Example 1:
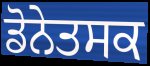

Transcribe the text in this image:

ਡੋਨੇਤਸਕ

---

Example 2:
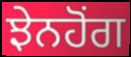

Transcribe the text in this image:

ਝੇਨਹੋਂਗ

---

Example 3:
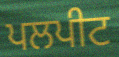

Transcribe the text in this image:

ਪਲਪੀਟ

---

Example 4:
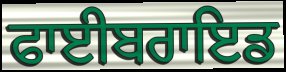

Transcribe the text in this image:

ਫਾਈਬਰਾਇਡ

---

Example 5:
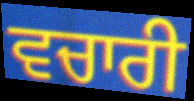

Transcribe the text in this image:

ਵਚਾਰੀ